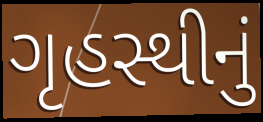
ગૃહસ્થીનું